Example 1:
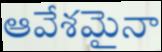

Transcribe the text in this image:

ఆవేశమైనా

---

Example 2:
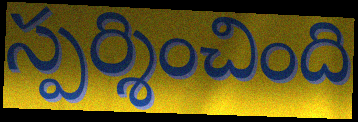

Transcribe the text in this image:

స్పర్శించింది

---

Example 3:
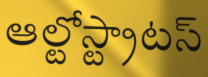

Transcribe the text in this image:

ఆల్టోస్ట్రాటస్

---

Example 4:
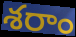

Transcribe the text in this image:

శరాం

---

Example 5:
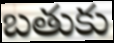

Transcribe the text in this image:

బతుకు